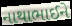
નાથાભાઈને